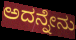
ಅದನ್ನೇನು